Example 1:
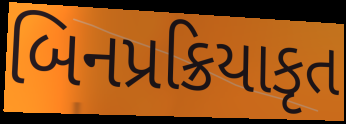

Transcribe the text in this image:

બિનપ્રક્રિયાકૃત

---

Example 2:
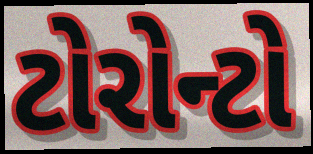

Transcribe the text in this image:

ટોરોન્ટો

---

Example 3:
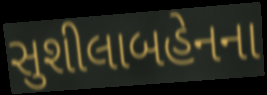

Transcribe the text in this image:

સુશીલાબહેનના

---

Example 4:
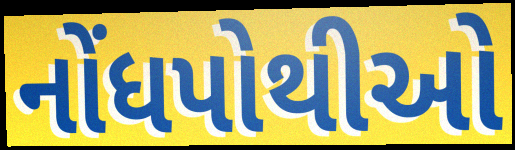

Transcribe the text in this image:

નોંધપોથીઓ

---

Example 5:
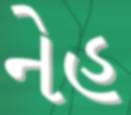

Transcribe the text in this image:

નેહ